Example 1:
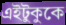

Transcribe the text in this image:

এইটুকুকে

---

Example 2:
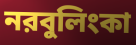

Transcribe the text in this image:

নরবুলিংকা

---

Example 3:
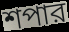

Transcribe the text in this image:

শপার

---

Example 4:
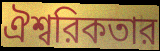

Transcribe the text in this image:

ঐশ্বরিকতার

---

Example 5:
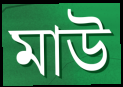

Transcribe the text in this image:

মাউ